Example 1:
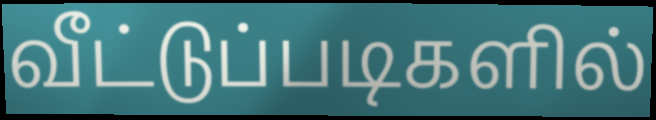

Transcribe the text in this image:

வீட்டுப்படிகளில்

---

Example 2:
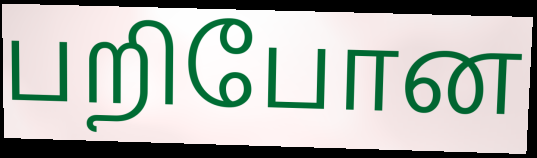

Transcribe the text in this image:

பறிபோன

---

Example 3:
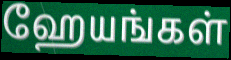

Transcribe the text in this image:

ஹேயங்கள்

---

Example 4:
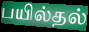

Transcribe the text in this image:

பயில்தல்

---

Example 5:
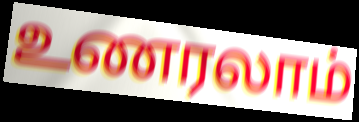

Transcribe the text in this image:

உணரலாம்